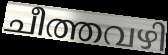
ചീത്തവഴി